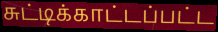
சுட்டிக்காட்டப்பட்ட